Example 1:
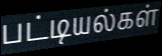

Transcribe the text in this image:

பட்டியல்கள்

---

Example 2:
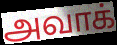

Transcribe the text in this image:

அவாக்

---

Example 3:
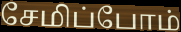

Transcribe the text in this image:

சேமிப்போம்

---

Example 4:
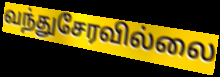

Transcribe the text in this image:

வந்துசேரவில்லை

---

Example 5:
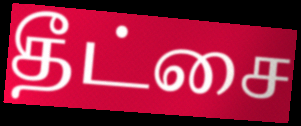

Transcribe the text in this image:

தீட்சை